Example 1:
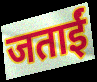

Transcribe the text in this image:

जताईं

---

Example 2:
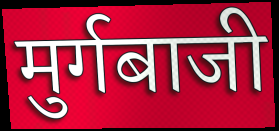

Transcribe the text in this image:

मुर्गबाजी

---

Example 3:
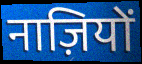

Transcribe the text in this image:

नाज़ियों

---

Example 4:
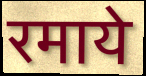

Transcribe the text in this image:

रमाये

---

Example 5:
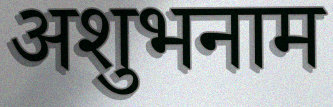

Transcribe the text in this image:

अशुभनाम